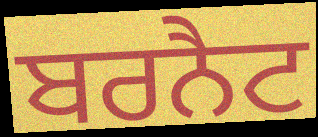
ਬਰਨੈਟ